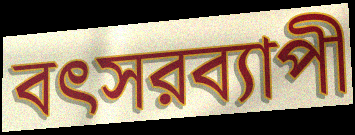
বৎসরব্যাপী